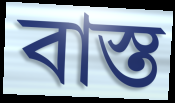
বাস্ত